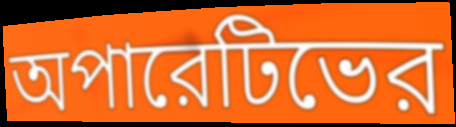
অপারেটিভের